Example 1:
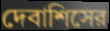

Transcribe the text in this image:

দেবাশিসের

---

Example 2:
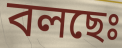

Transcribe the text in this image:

বলছেঃ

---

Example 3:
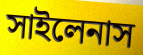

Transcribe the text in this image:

সাইলেনাস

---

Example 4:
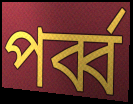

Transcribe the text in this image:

পর্ব্ব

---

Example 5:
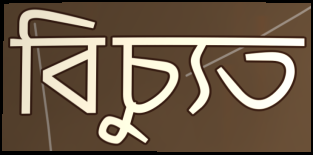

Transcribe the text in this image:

বিচ্যুত